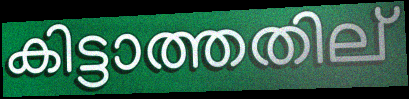
കിട്ടാത്തതില്